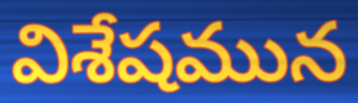
విశేషమున